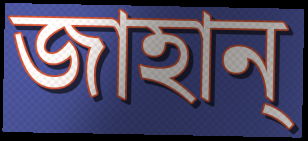
জাহান্